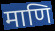
माणि